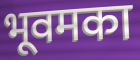
भूवमका